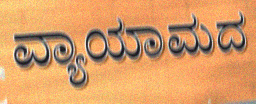
ವ್ಯಾಯಾಮದ